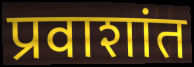
प्रवाशांत